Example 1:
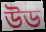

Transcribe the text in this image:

উড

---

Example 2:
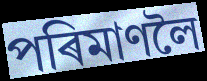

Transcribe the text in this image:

পৰিমাণলৈ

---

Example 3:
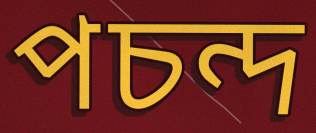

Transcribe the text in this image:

পচন্দ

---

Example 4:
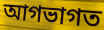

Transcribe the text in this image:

আগভাগত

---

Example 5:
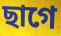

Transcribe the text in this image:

ছাগে